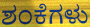
ಶಂಕೆಗಳು